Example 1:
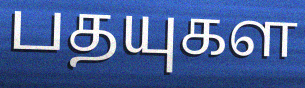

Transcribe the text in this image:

பதயுகள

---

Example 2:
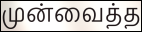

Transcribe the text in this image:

முன்வைத்த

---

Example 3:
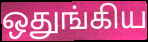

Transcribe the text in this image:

ஒதுங்கிய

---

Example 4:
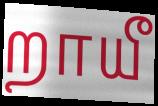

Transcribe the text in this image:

றாயீ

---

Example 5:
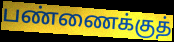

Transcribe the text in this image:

பண்ணைக்குத்